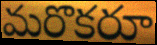
మరొకరూ